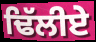
ਢਿੱਲੀਏ